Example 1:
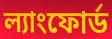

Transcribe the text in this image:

ল্যাংফোর্ড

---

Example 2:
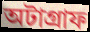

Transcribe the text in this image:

অটাগ্রাফ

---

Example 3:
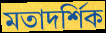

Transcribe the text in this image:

মতাদর্শিক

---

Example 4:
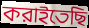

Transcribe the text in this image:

করাইতেছি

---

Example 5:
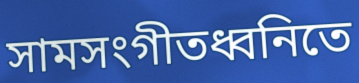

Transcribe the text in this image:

সামসংগীতধ্বনিতে